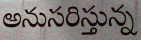
అనుసరిస్తున్న